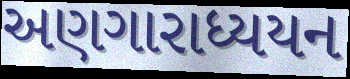
અણગારાધ્યયન